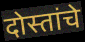
दोस्तांचे